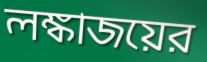
লঙ্কাজয়ের